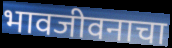
भावजीवनाचा